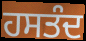
ਹਸਤੰਦ